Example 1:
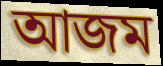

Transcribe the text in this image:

আজম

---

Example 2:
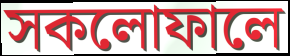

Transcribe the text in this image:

সকলোফালে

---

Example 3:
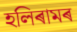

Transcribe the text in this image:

হলিৰামৰ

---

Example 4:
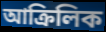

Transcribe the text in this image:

আক্ৰিলিক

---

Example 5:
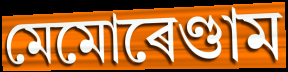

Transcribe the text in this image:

মেমোৰেণ্ডাম